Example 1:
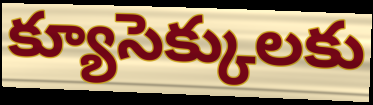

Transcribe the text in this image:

క్యూసెక్కులకు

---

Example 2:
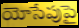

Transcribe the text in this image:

యోసేపుపై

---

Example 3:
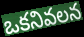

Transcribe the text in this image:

ఒకనివలన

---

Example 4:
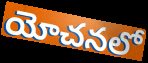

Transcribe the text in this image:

యోచనలో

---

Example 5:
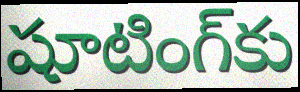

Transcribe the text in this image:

షూటింగ్‌కు